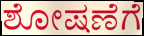
ಶೋಷಣೆಗೆ